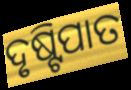
ଦୃଷ୍ଟିପାତ